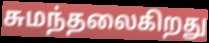
சுமந்தலைகிறது